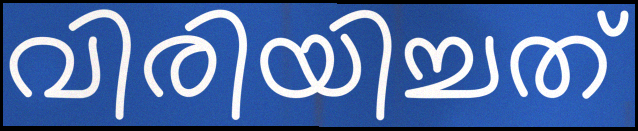
വിരിയിച്ചത്